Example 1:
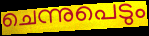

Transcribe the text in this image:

ചെന്നുപെടും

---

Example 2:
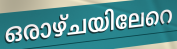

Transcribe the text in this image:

ഒരാഴ്ചയിലേറെ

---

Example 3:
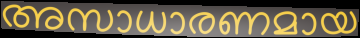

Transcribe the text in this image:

അസാധാരണമായ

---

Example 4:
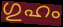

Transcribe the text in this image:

ഗുഹം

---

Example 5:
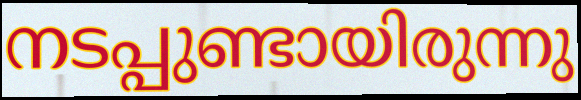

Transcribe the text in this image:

നടപ്പുണ്ടായിരുന്നു